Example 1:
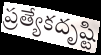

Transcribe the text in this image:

ప్రత్యేకదృష్టి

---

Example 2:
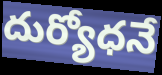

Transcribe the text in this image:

దుర్యోధనే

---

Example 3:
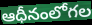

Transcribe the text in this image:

ఆధీనంలోగల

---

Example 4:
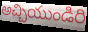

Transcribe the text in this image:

అచ్చియుండిరి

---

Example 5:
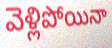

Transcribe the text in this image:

వెళ్లిపోయినా